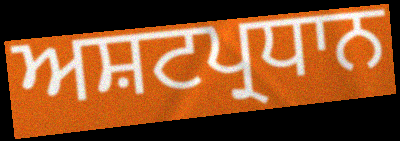
ਅਸ਼ਟਪ੍ਰਧਾਨ